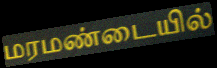
மரமண்டையில்